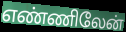
எண்ணிலேன்